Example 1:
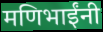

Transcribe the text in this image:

मणिभाईंनी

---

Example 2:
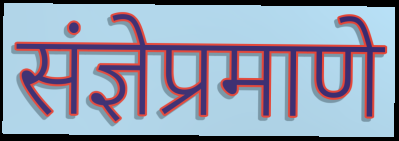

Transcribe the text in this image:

संज्ञेप्रमाणे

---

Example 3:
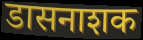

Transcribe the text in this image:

डासनाशक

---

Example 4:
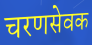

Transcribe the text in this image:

चरणसेवक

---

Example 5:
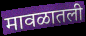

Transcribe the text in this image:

मावळातली